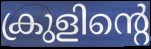
ക്രുളിന്റെ